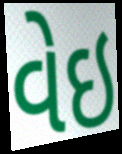
વેઇ